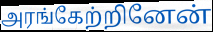
அரங்கேற்றினேன்